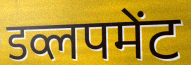
डव्लपमेंट